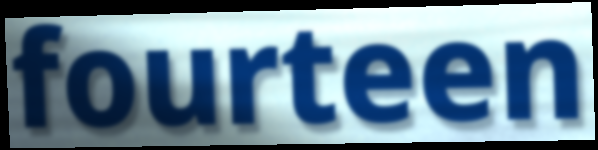
fourteen